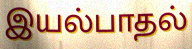
இயல்பாதல்